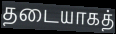
தடையாகத்